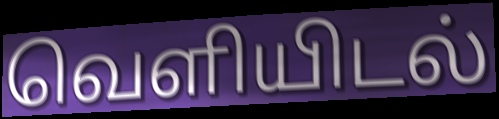
வெளியிடல்